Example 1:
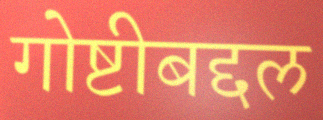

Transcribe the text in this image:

गोष्टीबद्दल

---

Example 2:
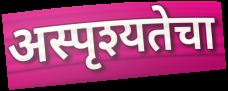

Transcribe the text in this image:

अस्पृश्यतेचा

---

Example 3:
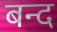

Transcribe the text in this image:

बन्द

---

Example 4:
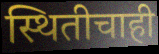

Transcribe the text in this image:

स्थितीचाही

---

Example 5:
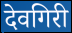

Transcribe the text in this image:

देवगिरी